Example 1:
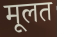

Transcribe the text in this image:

मूलत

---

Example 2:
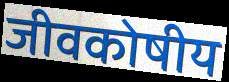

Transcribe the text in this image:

जीवकोषीय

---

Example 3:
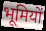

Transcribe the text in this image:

भूमियों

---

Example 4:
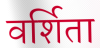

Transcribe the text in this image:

वर्शिता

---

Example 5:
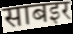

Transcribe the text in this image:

साबइर